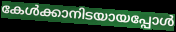
കേൾക്കാനിടയായപ്പോൾ